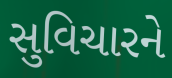
સુવિચારને